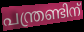
പന്ത്രണ്ടിന്